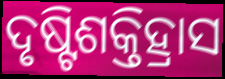
ଦୃଷ୍ଟିଶକ୍ତିହ୍ରାସ